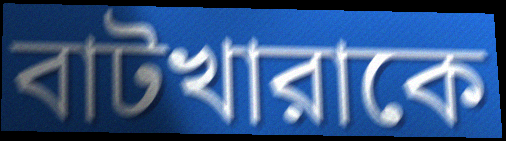
বাটখারাকে